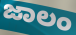
ಜಾಲಂ